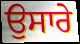
ਉਸਾਰੇ